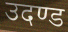
उदण्ड